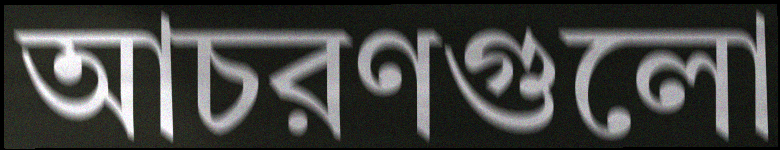
আচরণগুলো